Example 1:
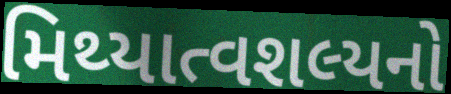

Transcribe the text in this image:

મિથ્યાત્વશલ્યનો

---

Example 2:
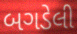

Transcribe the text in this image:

બગડેલી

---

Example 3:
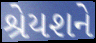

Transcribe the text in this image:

શ્રેયશને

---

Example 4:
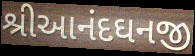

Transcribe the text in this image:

શ્રીઆનંદઘનજી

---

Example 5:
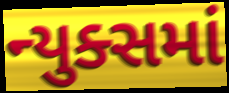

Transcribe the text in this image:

ન્યુક્સમાં